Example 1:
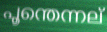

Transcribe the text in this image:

പൂന്തെന്നല്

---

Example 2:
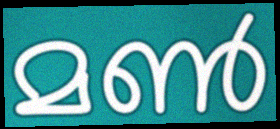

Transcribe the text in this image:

മൺ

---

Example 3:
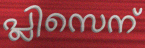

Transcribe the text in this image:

പ്ലിസെന്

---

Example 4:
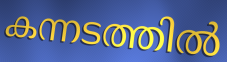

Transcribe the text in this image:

കന്നടത്തിൽ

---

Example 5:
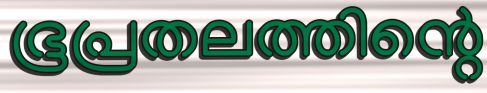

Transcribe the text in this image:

ഭൂപ്രതലത്തിന്റെ